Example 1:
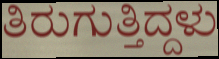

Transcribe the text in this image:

ತಿರುಗುತ್ತಿದ್ದಳು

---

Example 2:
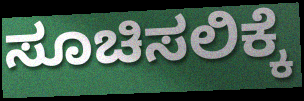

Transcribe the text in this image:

ಸೂಚಿಸಲಿಕ್ಕೆ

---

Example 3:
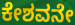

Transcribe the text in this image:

ಕೇಶವನೇ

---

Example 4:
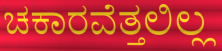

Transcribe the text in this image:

ಚಕಾರವೆತ್ತಲಿಲ್ಲ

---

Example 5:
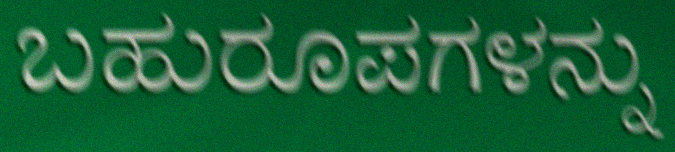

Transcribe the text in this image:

ಬಹುರೂಪಗಳನ್ನು